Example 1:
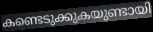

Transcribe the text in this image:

കണ്ടെടുക്കുകയുണ്ടായി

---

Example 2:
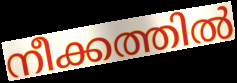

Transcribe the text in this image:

നീക്കത്തിൽ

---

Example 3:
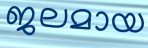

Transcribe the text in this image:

ജലമായ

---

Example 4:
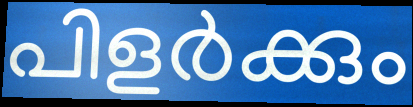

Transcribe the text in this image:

പിളർക്കും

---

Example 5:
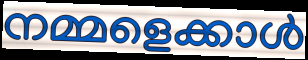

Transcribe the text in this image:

നമ്മളെക്കാൾ